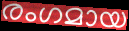
രംഗമായ